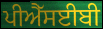
ਪੀਐੱਸਈਬੀ